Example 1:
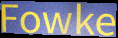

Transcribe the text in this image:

Fowke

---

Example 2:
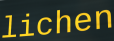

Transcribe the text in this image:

lichen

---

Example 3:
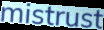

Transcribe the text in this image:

mistrust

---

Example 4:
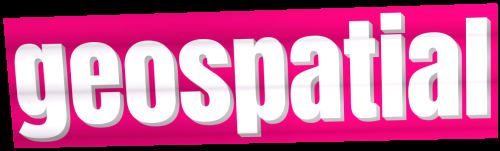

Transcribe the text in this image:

geospatial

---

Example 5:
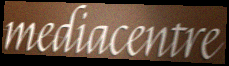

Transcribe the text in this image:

mediacentre